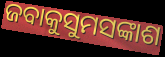
ଜବାକୁସୁମସଙ୍କାଶ